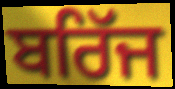
ਬਰਿੱਜ